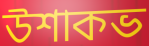
উশাকভ